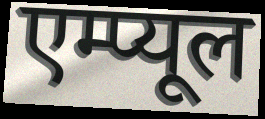
एम्प्यूल